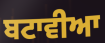
ਬਟਾਵੀਆ